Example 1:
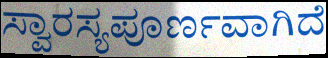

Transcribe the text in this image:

ಸ್ವಾರಸ್ಯಪೂರ್ಣವಾಗಿದೆ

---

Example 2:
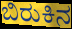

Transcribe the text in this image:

ಬಿರುಕಿನ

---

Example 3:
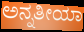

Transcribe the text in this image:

ಅನ್ನತೀಯಾ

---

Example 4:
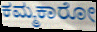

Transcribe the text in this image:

ಕಮ್ಮಕಾರೋ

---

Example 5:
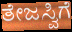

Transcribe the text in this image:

ತೇಜಸ್ವಿಗೆ